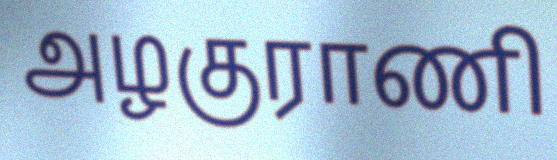
அழகுராணி